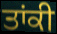
ਤਾਂਕੀ